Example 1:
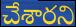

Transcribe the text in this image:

చేశారని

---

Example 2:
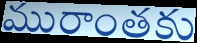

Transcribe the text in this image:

మురాంతకు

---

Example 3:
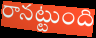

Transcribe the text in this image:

రానట్టుంది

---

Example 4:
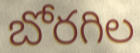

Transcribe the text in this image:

బోరగిల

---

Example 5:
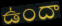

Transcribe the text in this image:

ఉందా